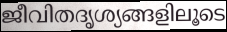
ജീവിതദൃശ്യങ്ങളിലൂടെ